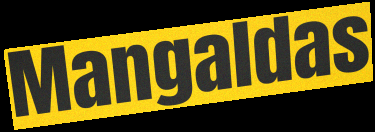
Mangaldas